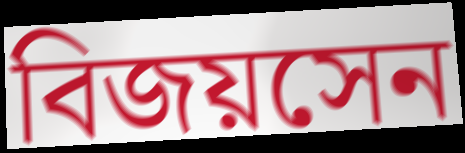
বিজয়সেন